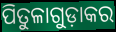
ପିତୁଳାଗୁଡ଼ାକର